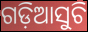
ଗଡ଼ିଆସୁଚି